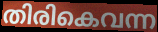
തിരികെവന്ന